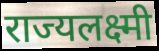
राज्यलक्ष्मी